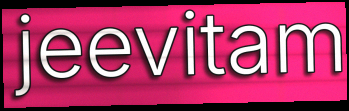
jeevitam